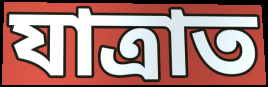
যাত্ৰাত